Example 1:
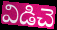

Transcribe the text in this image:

విడిచె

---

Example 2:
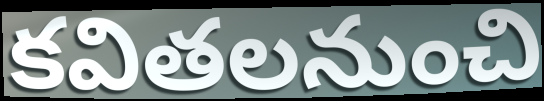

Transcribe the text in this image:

కవితలనుంచి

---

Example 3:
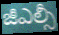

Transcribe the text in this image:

జీఎల్సీ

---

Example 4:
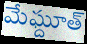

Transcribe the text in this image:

మేఘ్దూత్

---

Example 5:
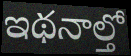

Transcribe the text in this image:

ఇథనాల్తో